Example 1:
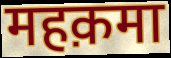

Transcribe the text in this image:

महक़मा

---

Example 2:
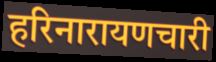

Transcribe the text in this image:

हरिनारायणचारी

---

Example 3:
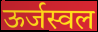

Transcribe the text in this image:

ऊर्जस्वल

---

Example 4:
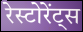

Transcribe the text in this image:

रेस्‍टोरेंट्स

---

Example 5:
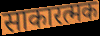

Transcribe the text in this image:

साकारत्मक